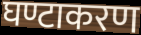
घण्टाकरण